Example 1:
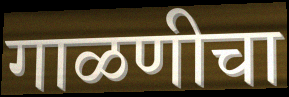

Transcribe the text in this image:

गाळणीचा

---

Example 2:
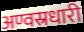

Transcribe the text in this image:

अण्वस्रधारी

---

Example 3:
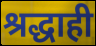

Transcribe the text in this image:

श्रद्धाही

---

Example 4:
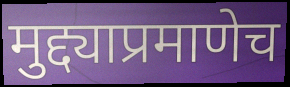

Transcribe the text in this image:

मुद्द्याप्रमाणेच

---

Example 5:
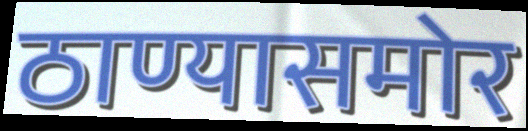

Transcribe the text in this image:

ठाण्यासमोर